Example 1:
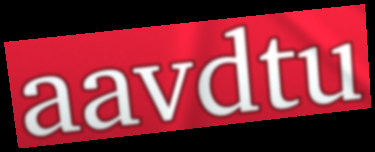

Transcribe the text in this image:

aavdtu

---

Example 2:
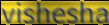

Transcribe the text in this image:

vishesha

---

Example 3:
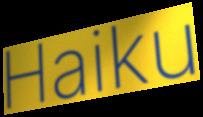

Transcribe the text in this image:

Haiku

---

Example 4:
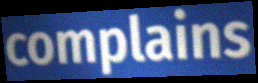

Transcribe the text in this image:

complains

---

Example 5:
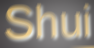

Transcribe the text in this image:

Shui